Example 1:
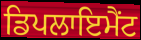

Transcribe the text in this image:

ਡਿਪਲਾਇਮੈਂਟ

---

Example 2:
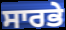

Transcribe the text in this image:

ਸਾਰਭੇ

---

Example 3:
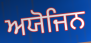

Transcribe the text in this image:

ਅਯੋਜਿਨ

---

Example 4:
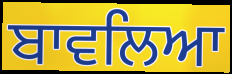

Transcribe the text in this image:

ਬਾਵਲਿਆ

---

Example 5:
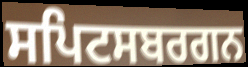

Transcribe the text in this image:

ਸਪਿਟਸਬਰਗਨ